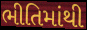
ભીતિમાંથી